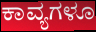
ಕಾವ್ಯಗಳೂ